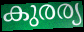
കുരര്യ